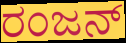
ರಂಜನ್